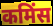
कमिंस